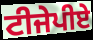
ਟੀਜੇਪੀਏ